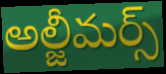
అల్జీమర్స్